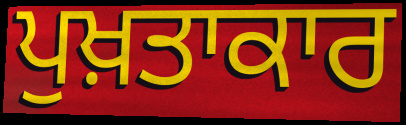
ਪੁਖ਼ਤਾਕਾਰ